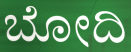
ಬೋದಿ